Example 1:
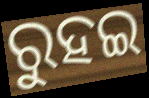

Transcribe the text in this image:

ରୁହଇ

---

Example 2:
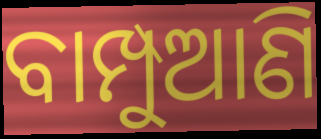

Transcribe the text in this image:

ବାମ୍ପୁଆଣି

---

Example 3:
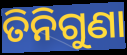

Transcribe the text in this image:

ତିନିଗୁଣା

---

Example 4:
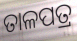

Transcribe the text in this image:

ତାଳପତ୍ର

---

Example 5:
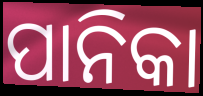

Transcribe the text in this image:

ପାନିକା